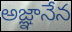
అజ్ఞానేన